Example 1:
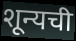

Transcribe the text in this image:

शून्यची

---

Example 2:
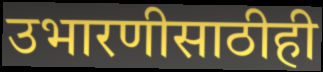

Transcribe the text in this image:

उभारणीसाठीही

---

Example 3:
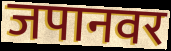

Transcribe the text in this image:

जपानवर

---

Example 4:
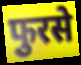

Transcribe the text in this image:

फुरसे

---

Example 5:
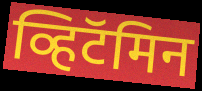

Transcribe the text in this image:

व्हिटॅमिन